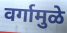
वर्गामुळे